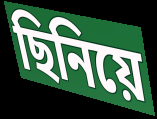
ছিনিয়ে